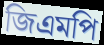
জিএমপি